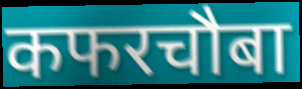
कफरचौबा